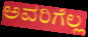
ಅವರಿಗೆಲ್ಲ